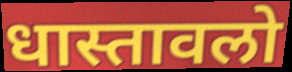
धास्तावलो